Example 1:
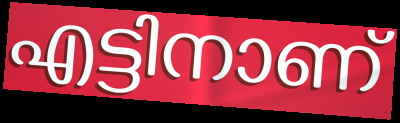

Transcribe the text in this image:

എട്ടിനാണ്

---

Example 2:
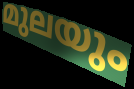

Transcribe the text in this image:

മുലയും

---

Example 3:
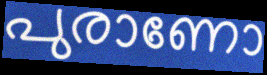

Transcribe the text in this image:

പുരാണോ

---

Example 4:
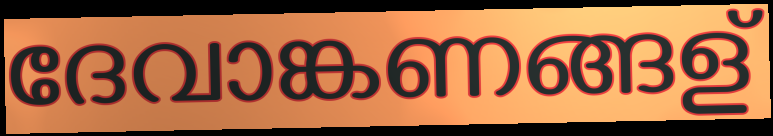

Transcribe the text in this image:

ദേവാങ്കണങ്ങള്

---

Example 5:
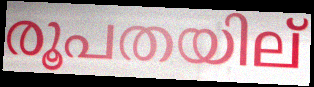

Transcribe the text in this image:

രൂപതയില്